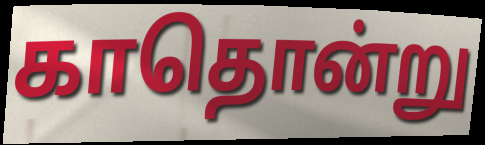
காதொன்று